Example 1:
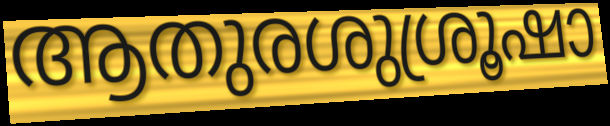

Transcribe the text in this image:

ആതുരശുശ്രൂഷാ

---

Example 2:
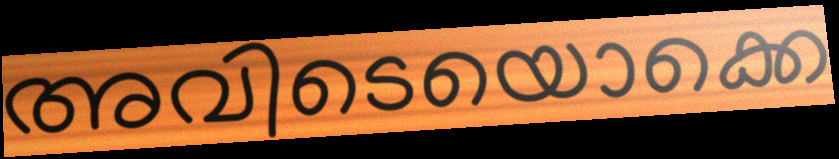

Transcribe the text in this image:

അവിടെയൊക്കെ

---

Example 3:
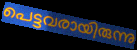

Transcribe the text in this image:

പെട്ടവരായിരുന്നു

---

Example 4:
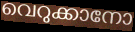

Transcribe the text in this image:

വെറുക്കാനോ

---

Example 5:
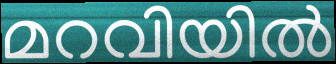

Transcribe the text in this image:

മറവിയിൽ